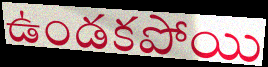
ఉండకపోయి